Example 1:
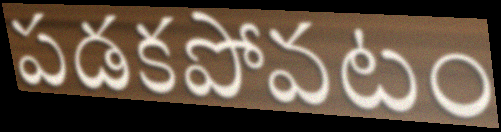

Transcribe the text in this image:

పడకపోవటం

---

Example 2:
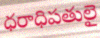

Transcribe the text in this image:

ధరాధిపతులై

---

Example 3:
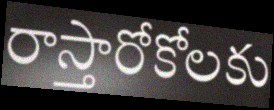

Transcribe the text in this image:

రాస్తారోకోలకు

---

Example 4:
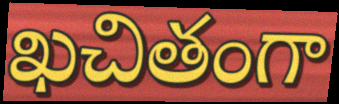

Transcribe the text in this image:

ఖచితంగా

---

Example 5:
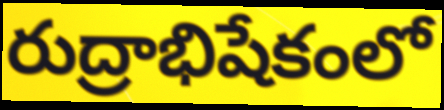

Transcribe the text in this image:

రుద్రాభిషేకంలో